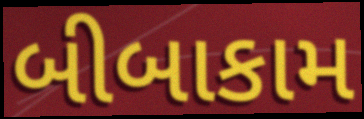
બીબાકામ